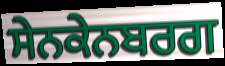
ਸੇਨਕੇਨਬਰਗ